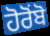
ਹੋਰੋਂਬੋ